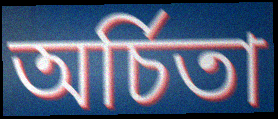
অৰ্চিতা